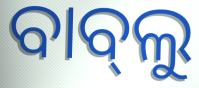
ବାବ୍‍ଲୁ